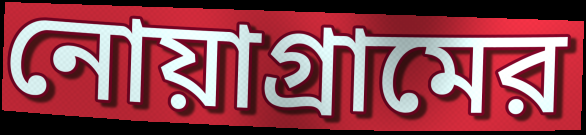
নোয়াগ্রামের